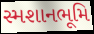
સ્મશાનભૂમિ